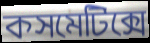
কসমেটিক্সে